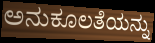
ಅನುಕೂಲತೆಯನ್ನು